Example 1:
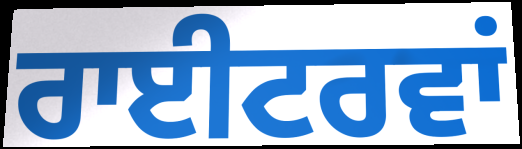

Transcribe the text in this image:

ਰਾਈਟਰਵਾਂ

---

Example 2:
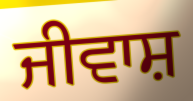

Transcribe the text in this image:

ਜੀਵਾਸ਼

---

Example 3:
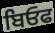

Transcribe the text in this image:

ਬਿਓਫ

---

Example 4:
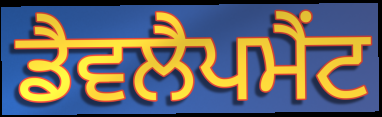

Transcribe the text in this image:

ਡੈਵਲੈਪਮੈਂਟ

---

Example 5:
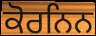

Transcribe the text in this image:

ਕੋਰਨਿਨ